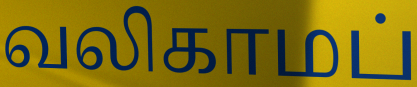
வலிகாமப்